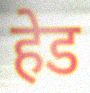
हेड